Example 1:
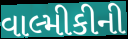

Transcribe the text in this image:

વાલ્મીકીની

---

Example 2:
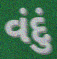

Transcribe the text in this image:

વંદું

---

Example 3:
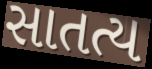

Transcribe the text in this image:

સાતત્ય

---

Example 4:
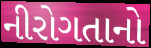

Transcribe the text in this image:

નીરોગતાનો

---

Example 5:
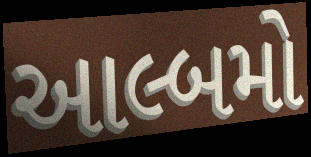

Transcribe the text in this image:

આલ્બમો